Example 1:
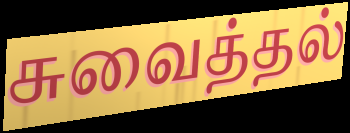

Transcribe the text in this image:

சுவைத்தல்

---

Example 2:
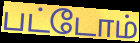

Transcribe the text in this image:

பட்டோம்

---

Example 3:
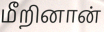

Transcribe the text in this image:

மீறினான்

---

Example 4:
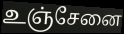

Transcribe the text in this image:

உஞ்சேனை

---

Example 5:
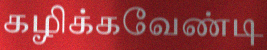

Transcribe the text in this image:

கழிக்கவேண்டி